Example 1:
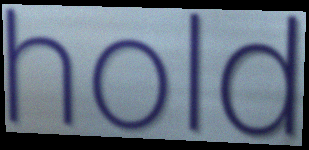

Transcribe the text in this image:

hold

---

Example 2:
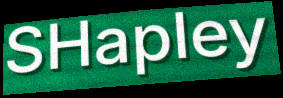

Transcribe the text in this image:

SHapley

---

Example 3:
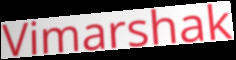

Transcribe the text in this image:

Vimarshak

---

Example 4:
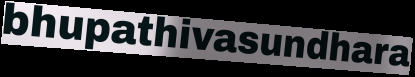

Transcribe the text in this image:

bhupathivasundhara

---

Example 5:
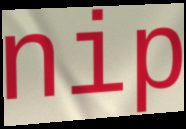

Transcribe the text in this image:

nip